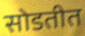
सोडतीत